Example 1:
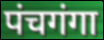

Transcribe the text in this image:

पंचगंगा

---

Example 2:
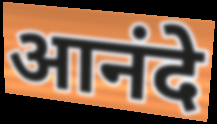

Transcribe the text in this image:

आनंदे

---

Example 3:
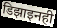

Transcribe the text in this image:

डिझाइनही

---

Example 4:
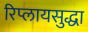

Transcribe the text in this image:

रिप्लायसुद्धा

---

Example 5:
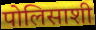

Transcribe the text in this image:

पोलिसाशी